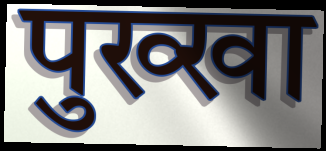
पुख्खा